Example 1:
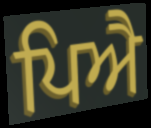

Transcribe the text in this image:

ਪਿਐ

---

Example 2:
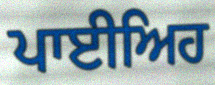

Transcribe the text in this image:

ਪਾਈਅਿਹ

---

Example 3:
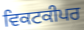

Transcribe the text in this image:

ਵਿਕਟਕੀਪਰ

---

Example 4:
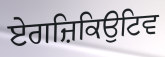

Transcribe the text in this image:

ਏਗਜ਼ਿਕਿਉਟਿਵ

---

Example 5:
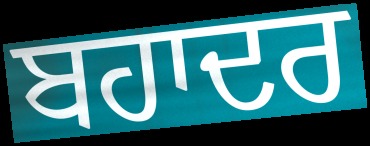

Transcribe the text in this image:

ਬਹਾਦਰ